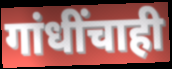
गांधींचाही